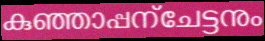
കുഞ്ഞാപ്പന്ചേട്ടനും